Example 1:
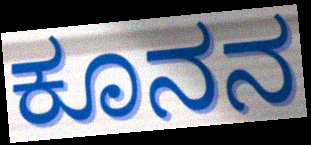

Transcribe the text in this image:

ಕೂನನ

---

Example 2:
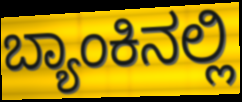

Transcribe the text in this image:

ಬ್ಯಾಂಕಿನಲ್ಲಿ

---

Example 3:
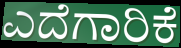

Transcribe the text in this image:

ಎದೆಗಾರಿಕೆ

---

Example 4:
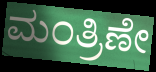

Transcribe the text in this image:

ಮಂತ್ರಿಣೇ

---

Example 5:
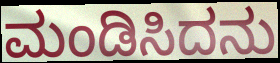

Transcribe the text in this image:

ಮಂಡಿಸಿದನು